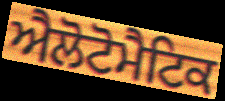
ਐਲੋਟੋਮੈਟਿਕ